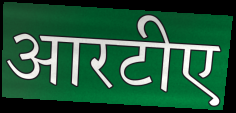
आरटीए